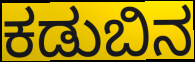
ಕಡುಬಿನ